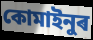
কোমাইনুৰ